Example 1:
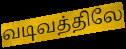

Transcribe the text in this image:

வடிவத்திலே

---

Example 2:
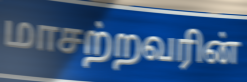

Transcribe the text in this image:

மாசற்றவரின்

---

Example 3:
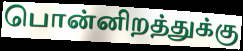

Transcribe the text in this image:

பொன்னிறத்துக்கு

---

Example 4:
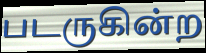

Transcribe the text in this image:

படருகின்ற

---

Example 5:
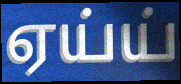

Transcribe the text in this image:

ஏய்ய்